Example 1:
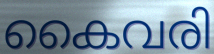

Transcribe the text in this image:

കൈവരി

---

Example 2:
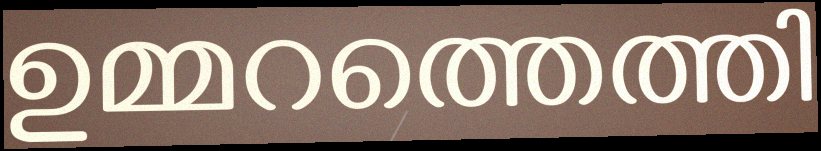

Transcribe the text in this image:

ഉമ്മറത്തെത്തി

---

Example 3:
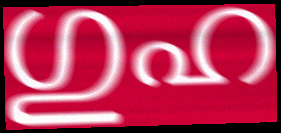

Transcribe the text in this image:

ഗുഹ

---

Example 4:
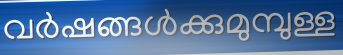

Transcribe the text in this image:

വർഷങ്ങൾക്കുമുമ്പുള്ള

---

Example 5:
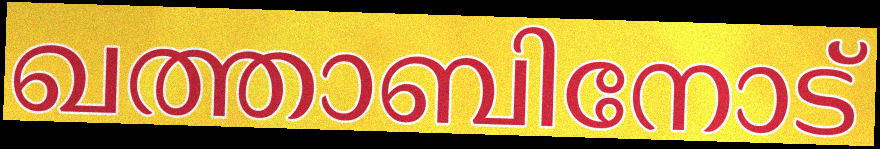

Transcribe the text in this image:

ഖത്താബിനോട്